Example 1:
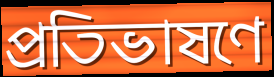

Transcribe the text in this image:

প্রতিভাষণে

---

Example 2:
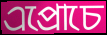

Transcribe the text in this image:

এপ্রোচে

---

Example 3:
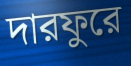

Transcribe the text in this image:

দারফুরে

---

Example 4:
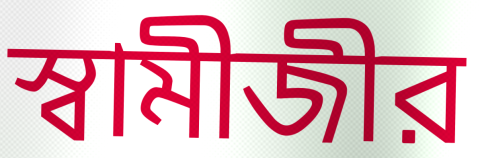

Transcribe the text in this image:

স্বামীজীর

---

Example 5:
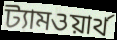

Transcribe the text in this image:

ট্যামওয়ার্থ